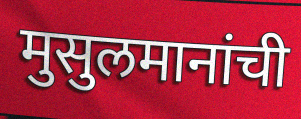
मुसुलमानांची